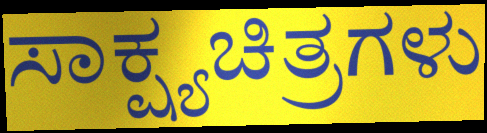
ಸಾಕ್ಷ್ಯಚಿತ್ರಗಳು